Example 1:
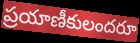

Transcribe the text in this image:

ప్రయాణీకులందరూ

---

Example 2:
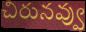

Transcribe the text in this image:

చిరునవ్వు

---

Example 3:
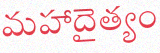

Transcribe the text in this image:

మహాదైత్యం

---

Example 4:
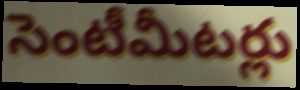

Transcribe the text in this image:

సెంటీమీటర్లు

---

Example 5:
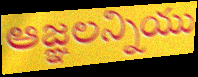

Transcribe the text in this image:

ఆజ్ఞలన్నియు